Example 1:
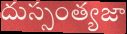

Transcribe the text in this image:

దుస్సంత్యజా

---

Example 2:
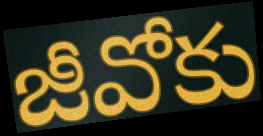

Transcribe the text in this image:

జీవోకు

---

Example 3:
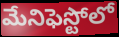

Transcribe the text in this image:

మేనిఫెస్టోలో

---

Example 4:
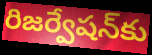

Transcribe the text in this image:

రిజర్వేషన్‌కు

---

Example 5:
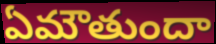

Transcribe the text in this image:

ఏమౌతుందా